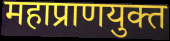
महाप्राणयुक्त